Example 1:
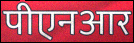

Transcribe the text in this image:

पीएनआर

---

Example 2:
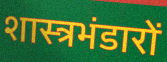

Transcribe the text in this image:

शास्त्रभंडारों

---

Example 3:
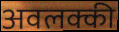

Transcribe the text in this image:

अवलक्की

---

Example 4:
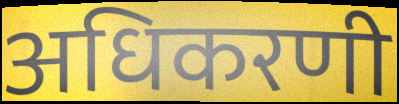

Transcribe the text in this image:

अधिकरणी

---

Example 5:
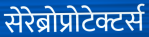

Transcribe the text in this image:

सेरेब्रोप्रोटेक्टर्स